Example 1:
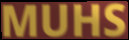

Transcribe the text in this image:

MUHS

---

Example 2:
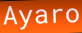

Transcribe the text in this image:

Ayaro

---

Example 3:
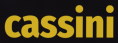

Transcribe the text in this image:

cassini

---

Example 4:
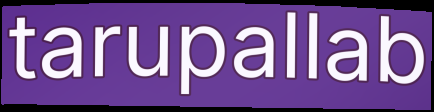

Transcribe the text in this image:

tarupallab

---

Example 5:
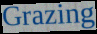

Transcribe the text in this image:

Grazing